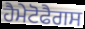
ਹੈਮੇਟੋਫੈਗਸ